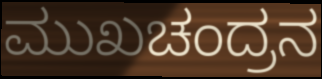
ಮುಖಚಂದ್ರನ